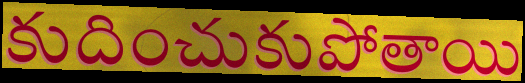
కుదించుకుపోతాయి